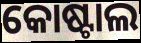
କୋଷ୍ଟାଲ